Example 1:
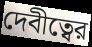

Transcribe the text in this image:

দেবীত্বের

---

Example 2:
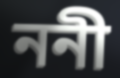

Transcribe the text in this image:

ননী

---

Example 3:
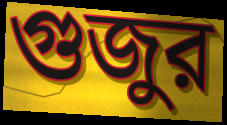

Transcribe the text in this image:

গুজুর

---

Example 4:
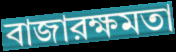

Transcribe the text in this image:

বাজারক্ষমতা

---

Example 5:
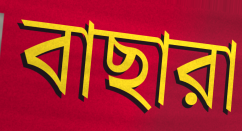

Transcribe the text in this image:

বাছারা